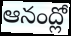
ఆనంద్లో